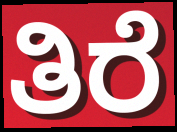
ತಿರೆ